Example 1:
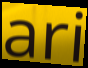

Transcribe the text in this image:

ari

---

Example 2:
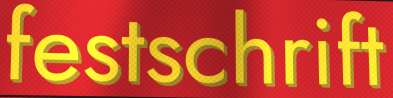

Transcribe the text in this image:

festschrift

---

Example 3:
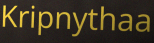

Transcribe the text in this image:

Kripnythaa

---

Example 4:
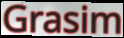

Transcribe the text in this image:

Grasim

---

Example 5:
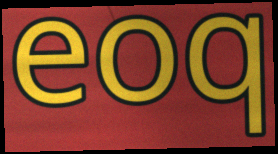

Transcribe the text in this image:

eoq